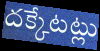
దక్కేటట్లు